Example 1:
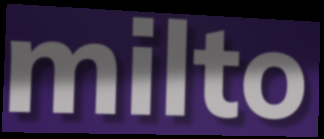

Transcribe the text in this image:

milto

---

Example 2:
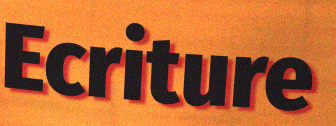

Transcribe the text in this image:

Ecriture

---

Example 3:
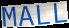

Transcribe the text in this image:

MALL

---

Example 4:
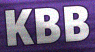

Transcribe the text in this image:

KBB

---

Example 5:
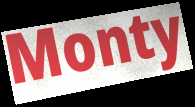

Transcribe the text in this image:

Monty